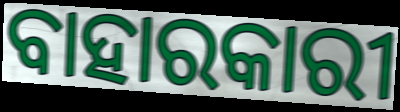
ବାହାରକାରୀ